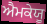
ਐਮਕੇਯੂ